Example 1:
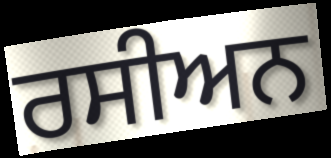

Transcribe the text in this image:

ਰਸੀਅਨ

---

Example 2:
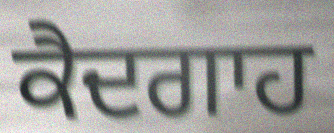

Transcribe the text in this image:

ਕੈਦਗਾਹ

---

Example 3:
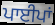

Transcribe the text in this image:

ਪਾਈਪਾਂ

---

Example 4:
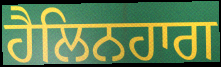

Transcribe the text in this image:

ਹੈਲਿਨਹਾਗ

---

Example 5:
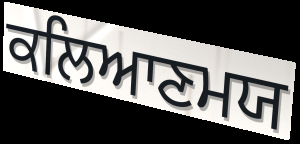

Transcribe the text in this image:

ਕਲਿਆਣਮਯ